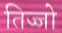
तिज्जो